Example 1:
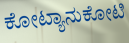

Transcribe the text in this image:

ಕೋಟ್ಯಾನುಕೋಟಿ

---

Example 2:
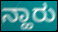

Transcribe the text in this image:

ನ್ಹಾರು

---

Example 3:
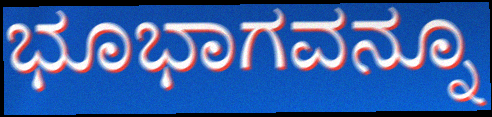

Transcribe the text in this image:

ಭೂಭಾಗವನ್ನೂ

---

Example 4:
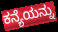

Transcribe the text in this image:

ಕನ್ಯೆಯನ್ನು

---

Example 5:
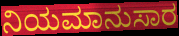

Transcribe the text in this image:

ನಿಯಮಾನುಸಾರ